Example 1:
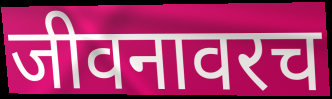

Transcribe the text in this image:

जीवनावरच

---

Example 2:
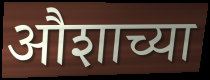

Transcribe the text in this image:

औशाच्या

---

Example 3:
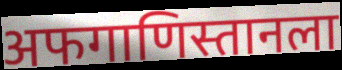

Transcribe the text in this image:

अफगाणिस्तानला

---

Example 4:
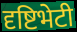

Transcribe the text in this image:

दृष्टिभेटी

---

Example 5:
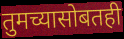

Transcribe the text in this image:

तुमच्यासोबतही